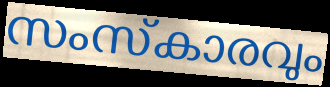
സംസ്‌കാരവും